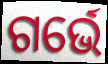
ଗର୍ଭେ